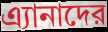
এ্যানাদের